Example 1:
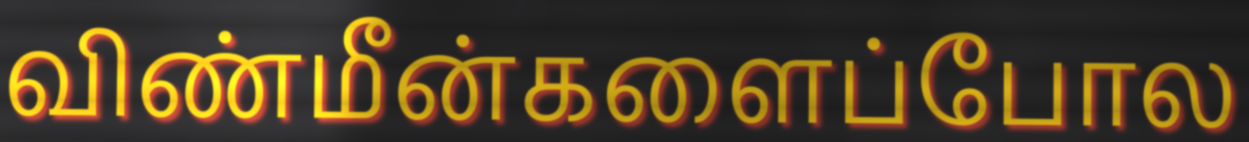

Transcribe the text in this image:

விண்மீன்களைப்போல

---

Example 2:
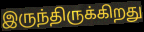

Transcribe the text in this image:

இருந்திருக்கிறது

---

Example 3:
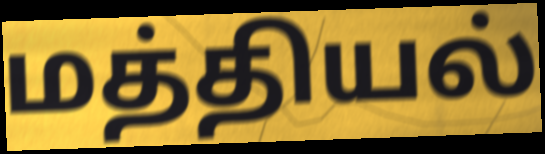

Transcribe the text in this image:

மத்தியல்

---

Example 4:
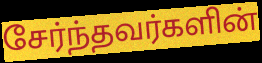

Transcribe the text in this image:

சேர்ந்தவர்களின்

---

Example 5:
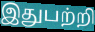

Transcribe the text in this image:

இதுபற்றி